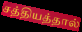
சத்தியத்தால்